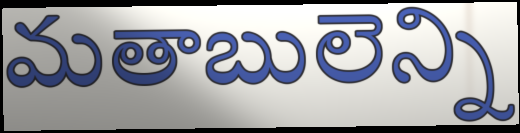
మతాబులెన్ని